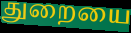
துறையை